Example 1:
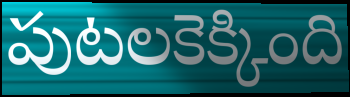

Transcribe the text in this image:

పుటలకెక్కింది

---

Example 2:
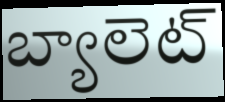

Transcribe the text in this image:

బ్యాలెట్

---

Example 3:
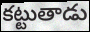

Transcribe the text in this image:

కట్టుతాడు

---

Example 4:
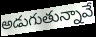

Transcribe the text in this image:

అడుగుతున్నావే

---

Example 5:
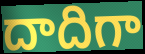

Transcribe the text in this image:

దాదిగా